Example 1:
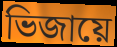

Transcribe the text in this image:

ভিজায়ে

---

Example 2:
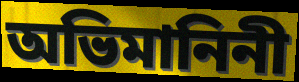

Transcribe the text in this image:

অভিমানিনী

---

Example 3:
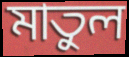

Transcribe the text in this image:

মাতুল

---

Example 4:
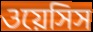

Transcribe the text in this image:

ওয়েসিস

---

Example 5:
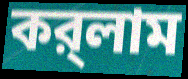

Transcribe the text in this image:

কর্‌লাম